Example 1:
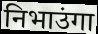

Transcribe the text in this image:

निभाउंगा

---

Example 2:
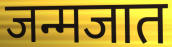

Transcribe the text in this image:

जन्मजात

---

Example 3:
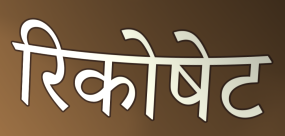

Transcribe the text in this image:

रिकोषेट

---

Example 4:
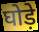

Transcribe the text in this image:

घोड़े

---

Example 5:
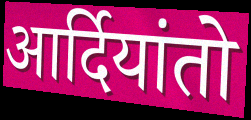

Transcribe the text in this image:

आर्दियांतो